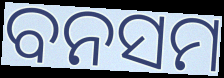
ବନସମ